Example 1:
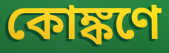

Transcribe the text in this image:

কোঙ্কণে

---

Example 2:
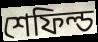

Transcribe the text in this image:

শেফিল্ড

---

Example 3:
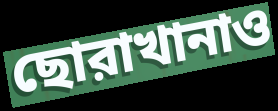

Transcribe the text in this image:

ছোরাখানাও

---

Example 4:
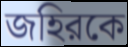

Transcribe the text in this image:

জহিরকে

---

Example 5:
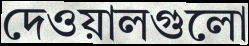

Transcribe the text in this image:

দেওয়ালগুলো